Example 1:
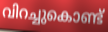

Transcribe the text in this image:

വിറച്ചുകൊണ്ട്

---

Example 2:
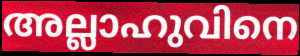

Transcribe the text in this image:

അല്ലാഹുവിനെ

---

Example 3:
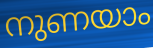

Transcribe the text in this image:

നുണയാം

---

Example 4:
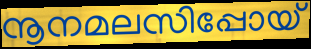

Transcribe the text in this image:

നൂനമലസിപ്പോയ്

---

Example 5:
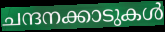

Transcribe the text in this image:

ചന്ദനക്കാടുകൾ